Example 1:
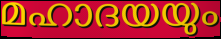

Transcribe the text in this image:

മഹാദയയും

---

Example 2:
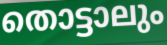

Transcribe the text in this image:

തൊട്ടാലും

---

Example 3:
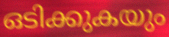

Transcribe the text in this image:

ഒടിക്കുകയും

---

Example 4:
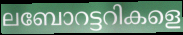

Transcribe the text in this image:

ലബോറട്ടറികളെ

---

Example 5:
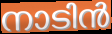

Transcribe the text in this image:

നാടിൻ